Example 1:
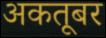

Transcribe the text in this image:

अकतूबर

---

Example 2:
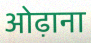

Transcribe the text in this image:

ओढ़ाना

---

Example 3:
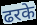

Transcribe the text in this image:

ढरके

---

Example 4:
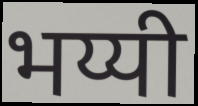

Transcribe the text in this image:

भय्यी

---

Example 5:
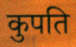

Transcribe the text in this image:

कुपति